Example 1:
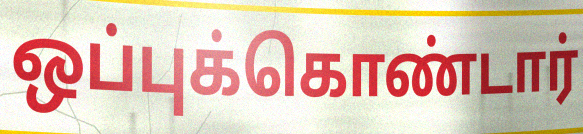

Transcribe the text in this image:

ஒப்புக்கொண்டார்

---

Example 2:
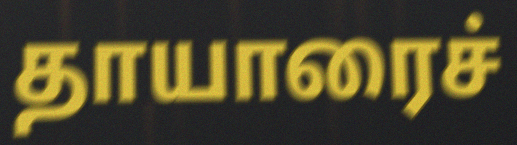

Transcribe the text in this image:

தாயாரைச்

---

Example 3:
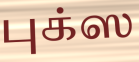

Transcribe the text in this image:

புக்ஸ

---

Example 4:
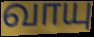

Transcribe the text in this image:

வாயு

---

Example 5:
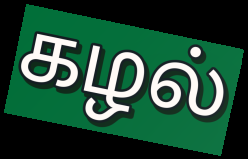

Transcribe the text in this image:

கழல்